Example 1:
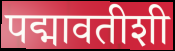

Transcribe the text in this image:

पद्मावतीशी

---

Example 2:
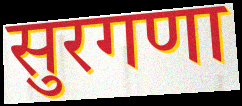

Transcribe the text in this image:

सुरगणा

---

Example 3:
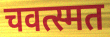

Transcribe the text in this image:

चवत्स्मत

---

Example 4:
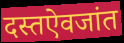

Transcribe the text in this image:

दस्तऐवजांत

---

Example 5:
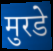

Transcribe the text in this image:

मुरडे